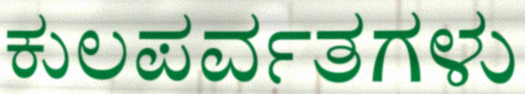
ಕುಲಪರ್ವತಗಳು